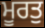
ਮੂਰਤੁ